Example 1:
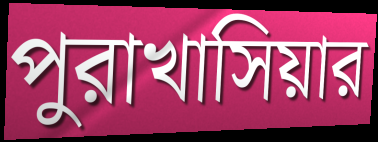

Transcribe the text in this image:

পুরাখাসিয়ার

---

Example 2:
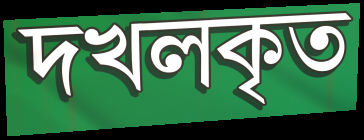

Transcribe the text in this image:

দখলকৃত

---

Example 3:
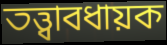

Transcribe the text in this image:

তত্ত্বাবধায়ক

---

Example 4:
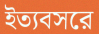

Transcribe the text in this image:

ইত্যবসরে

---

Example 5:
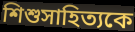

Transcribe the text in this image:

শিশুসাহিত্যকে